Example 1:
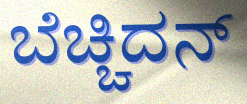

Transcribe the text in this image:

ಬೆಚ್ಚಿದನ್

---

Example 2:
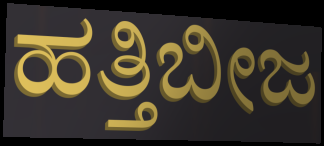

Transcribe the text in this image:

ಹತ್ತಿಬೀಜ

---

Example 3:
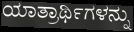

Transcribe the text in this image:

ಯಾತ್ರಾರ್ಥಿಗಳನ್ನು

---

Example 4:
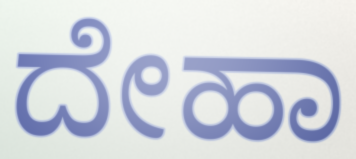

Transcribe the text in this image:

ದೇಹಾ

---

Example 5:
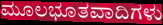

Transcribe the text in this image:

ಮೂಲಭೂತವಾದಿಗಳು